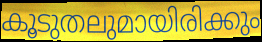
കൂടുതലുമായിരിക്കും